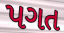
પગત